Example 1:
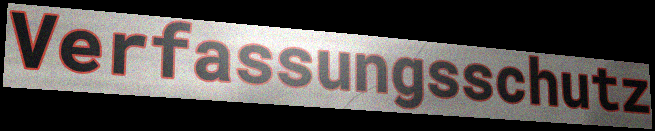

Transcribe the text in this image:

Verfassungsschutz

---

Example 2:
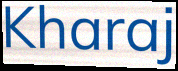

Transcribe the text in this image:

Kharaj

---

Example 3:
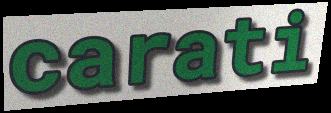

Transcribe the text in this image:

carati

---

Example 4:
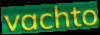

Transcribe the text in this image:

vachto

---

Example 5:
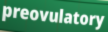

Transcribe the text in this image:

preovulatory